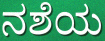
ನಶೆಯ